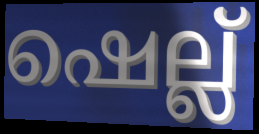
ഷെല്ല്